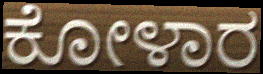
ಕೋಳಾರ